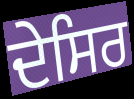
ਦੇਸਿਰ